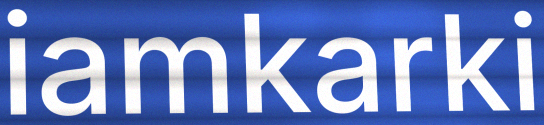
iamkarki